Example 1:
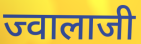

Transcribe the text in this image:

ज्वालाजी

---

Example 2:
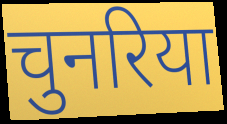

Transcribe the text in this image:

चुनरिया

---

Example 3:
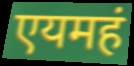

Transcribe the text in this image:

एयमहं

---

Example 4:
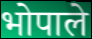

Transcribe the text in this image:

भोपाले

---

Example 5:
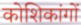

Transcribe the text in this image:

कोशिकांगों